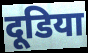
दूडिया